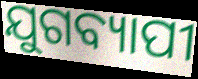
ଯୁଗବ୍ୟାପୀ